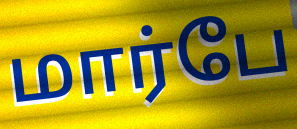
மார்பே